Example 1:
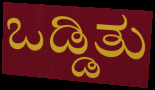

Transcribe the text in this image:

ಒಡ್ಡಿತು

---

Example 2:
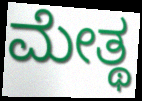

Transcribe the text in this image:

ಮೇತ್ಥ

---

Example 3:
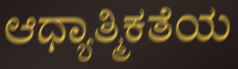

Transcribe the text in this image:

ಆಧ್ಯಾತ್ಮಿಕತೆಯ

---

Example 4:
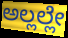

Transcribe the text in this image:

ಅಲ್ಲಲ್ಲೇ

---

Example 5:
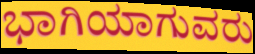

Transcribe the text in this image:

ಭಾಗಿಯಾಗುವರು